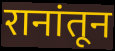
रानांतून